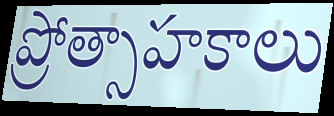
ప్రోత్సాహకాలు